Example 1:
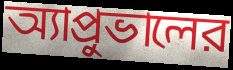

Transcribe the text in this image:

অ্যাপ্রুভালের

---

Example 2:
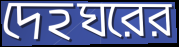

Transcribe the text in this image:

দেহঘরের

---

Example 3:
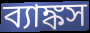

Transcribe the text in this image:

ব্যাঙ্কস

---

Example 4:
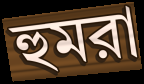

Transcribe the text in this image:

হুমরা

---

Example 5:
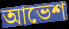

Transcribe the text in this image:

আভেশ